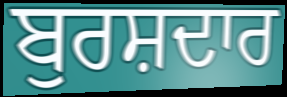
ਬੁਰਸ਼ਦਾਰ